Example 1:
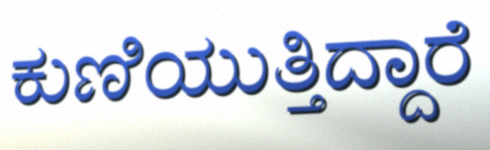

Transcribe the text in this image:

ಕುಣಿಯುತ್ತಿದ್ದಾರೆ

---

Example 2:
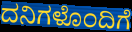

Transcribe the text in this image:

ದನಿಗಳೊಂದಿಗೆ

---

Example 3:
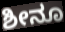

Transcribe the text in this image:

ಶೀನೂ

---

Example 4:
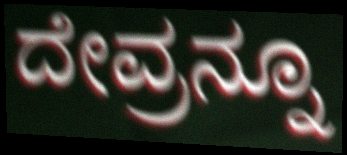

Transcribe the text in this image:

ದೇವ್ರನ್ನೂ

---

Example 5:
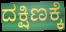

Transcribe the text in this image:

ದಕ್ಷಿಣಕ್ಕೆ